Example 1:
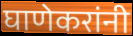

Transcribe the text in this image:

घाणेकरांनी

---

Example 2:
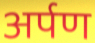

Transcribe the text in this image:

अर्पण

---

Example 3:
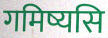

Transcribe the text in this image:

गमिष्यसि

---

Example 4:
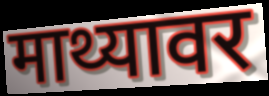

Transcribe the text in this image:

माथ्यावर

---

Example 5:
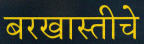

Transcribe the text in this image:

बरखास्तीचे